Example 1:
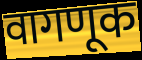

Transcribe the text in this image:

वागणूक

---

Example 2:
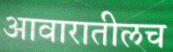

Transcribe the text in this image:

आवारातीलच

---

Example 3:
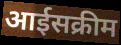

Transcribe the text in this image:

आईसक्रीम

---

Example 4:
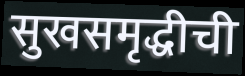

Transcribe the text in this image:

सुखसमृद्धीची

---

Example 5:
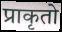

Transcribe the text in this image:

प्राकृतो